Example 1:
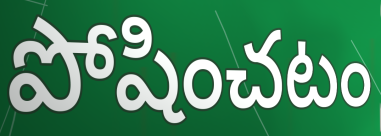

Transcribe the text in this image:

పోషించటం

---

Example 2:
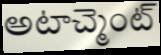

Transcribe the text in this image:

అటాచ్మెంట్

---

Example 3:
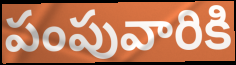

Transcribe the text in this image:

పంపువారికి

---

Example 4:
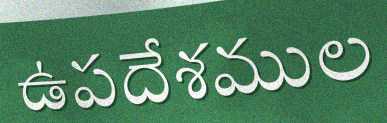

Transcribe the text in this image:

ఉపదేశముల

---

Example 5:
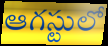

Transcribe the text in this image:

ఆగస్టులో